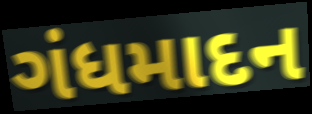
ગંધમાદન